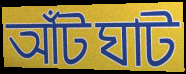
আঁটঘাট